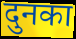
दुनका